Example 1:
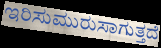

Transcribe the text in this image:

ಇರಿಸುಮುರುಸಾಗುತ್ತದೆ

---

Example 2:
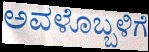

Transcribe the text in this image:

ಅವಳೊಬ್ಬಳಿಗೆ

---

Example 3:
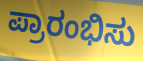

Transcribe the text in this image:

ಪ್ರಾರಂಭಿಸು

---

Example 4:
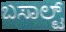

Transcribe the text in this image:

ಬಸಾಲ್ಟ್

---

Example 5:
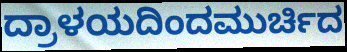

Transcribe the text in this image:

ದ್ರಾಳಯದಿಂದಮುರ್ಚಿದ